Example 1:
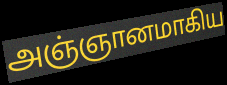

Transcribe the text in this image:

அஞ்ஞானமாகிய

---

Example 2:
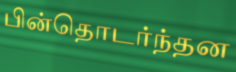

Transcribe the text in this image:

பின்தொடர்ந்தன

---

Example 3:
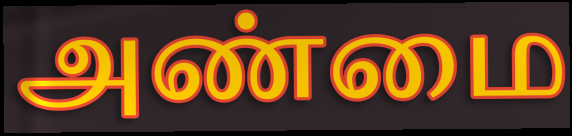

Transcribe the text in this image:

அண்மை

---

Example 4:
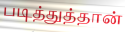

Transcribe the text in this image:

படித்துத்தான்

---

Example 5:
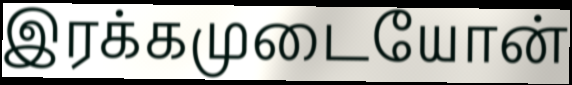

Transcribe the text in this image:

இரக்கமுடையோன்